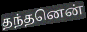
தந்தனென்